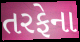
તરફેના